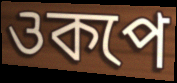
ওকপে